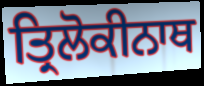
ਤ੍ਰਿਲੋਕੀਨਾਥ